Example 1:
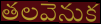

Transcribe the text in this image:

తలవెనుక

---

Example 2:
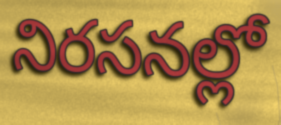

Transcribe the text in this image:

నిరసనల్లో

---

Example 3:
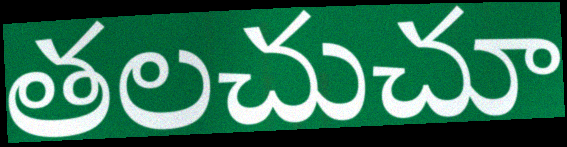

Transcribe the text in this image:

తలచుచూ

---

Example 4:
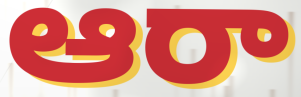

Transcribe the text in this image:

ఆరా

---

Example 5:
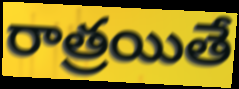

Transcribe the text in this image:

రాత్రయితే